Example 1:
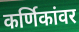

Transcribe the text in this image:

कर्णिकांवर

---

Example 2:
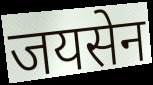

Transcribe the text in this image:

जयसेन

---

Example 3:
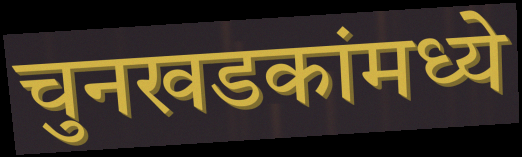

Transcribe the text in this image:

चुनखडकांमध्ये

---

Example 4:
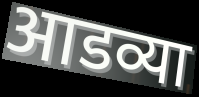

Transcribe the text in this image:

आडव्या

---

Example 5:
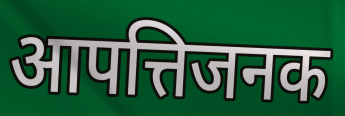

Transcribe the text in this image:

आपत्तिजनक